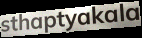
sthaptyakala